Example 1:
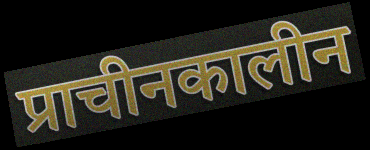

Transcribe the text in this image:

प्राचीनकालीन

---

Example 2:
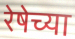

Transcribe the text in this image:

रेषेच्या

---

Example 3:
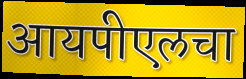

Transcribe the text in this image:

आयपीएलचा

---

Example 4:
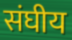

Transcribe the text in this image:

संघीय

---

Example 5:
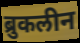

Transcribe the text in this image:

ब्रुकलीन